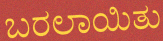
ಬರಲಾಯಿತು